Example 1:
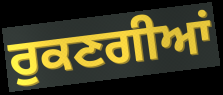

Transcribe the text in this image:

ਰੁਕਣਗੀਆਂ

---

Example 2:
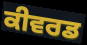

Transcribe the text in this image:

ਕੀਵਰਡ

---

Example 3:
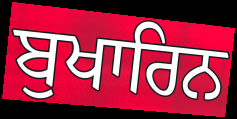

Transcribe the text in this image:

ਬੁਖਾਰਿਨ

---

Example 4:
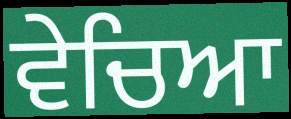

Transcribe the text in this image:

ਵੇਚਿਆ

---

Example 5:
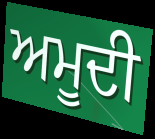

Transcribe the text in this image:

ਅਮੂਦੀ